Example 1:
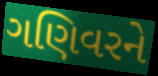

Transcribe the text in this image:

ગણિવરને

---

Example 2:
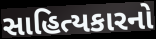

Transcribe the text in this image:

સાહિત્યકારનો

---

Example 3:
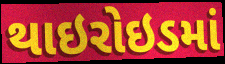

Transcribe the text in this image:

થાઇરોઇડમાં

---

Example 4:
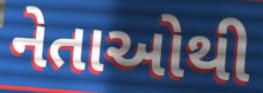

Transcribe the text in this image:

નેતાઓથી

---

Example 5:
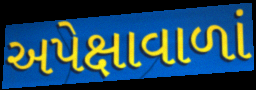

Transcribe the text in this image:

અપેક્ષાવાળાં